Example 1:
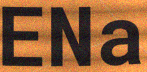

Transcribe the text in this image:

ENa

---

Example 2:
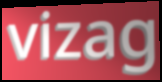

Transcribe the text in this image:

vizag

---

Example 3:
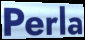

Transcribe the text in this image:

Perla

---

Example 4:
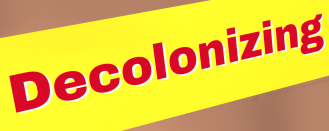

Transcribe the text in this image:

Decolonizing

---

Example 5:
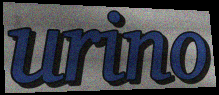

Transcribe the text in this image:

urino